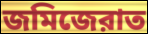
জমিজেরাত